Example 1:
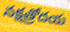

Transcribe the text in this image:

నక్షత్రోదయ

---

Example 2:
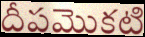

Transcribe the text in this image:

దీపమొకటి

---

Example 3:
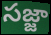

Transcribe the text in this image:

సజ్జా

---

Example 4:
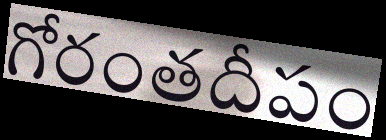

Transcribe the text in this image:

గోరంతదీపం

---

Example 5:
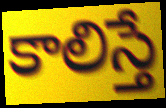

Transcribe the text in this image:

కాలిస్తే